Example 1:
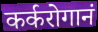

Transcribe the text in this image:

कर्करोगानं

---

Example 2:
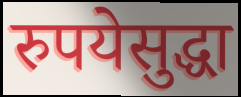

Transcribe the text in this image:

रुपयेसुद्धा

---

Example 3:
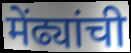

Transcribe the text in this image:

मेंढ्यांची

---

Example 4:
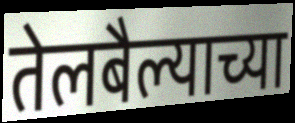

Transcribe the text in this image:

तेलबैल्याच्या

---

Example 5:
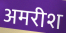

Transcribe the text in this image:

अमरीश